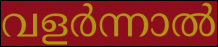
വളർന്നാൽ